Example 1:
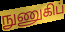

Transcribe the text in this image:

நுணுகிப்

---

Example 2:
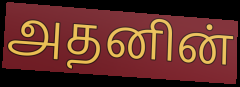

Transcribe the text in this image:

அதனின்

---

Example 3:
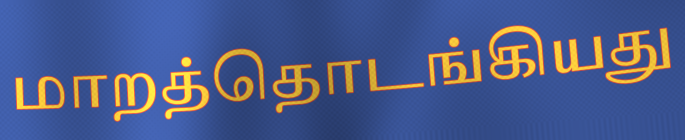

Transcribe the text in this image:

மாறத்தொடங்கியது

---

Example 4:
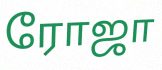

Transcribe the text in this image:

ரோஜா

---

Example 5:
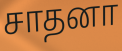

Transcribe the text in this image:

சாதனா